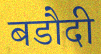
बडौदी